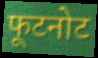
फूटनोट